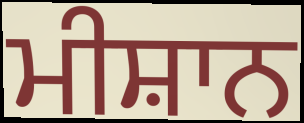
ਮੀਸ਼ਾਨ